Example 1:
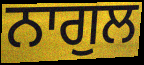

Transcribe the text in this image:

ਨਾਗੁਲ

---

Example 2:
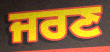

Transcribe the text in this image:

ਜਰਣ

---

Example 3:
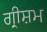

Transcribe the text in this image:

ਗ੍ਰੀਸ਼ਮ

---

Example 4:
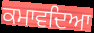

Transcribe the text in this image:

ਕਮਾਵਦਿਆ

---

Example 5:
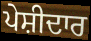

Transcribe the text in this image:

ਪੇਸ਼ੀਦਾਰ